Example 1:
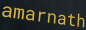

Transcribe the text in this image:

amarnath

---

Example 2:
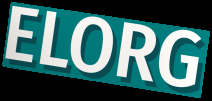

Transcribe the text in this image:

ELORG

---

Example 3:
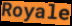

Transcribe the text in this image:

Royale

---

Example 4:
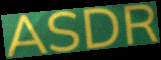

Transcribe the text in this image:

ASDR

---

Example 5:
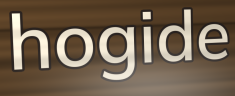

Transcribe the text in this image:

hogide